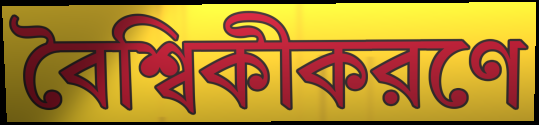
বৈশ্বিকীকরণে